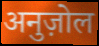
अनुज़ोल